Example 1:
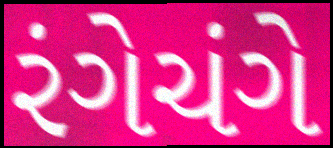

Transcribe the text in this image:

રંગેચંગે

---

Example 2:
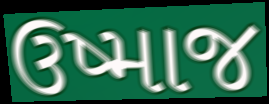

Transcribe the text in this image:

ઉષ્માજ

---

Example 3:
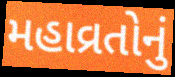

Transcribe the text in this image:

મહાવ્રતોનું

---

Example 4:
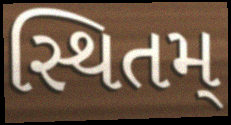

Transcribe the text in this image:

સ્થિતમ્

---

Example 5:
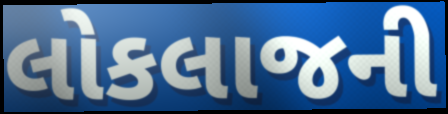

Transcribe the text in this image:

લોકલાજની